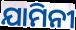
ଯାମିନୀ